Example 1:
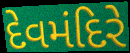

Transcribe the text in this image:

દેવમંદિરે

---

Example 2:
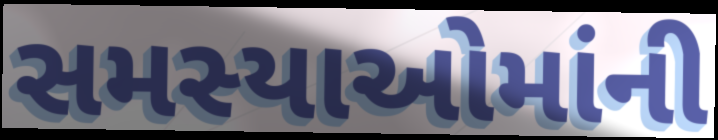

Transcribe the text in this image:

સમસ્યાઓમાંની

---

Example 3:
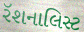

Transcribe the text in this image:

રૅશનાલિસ્ટ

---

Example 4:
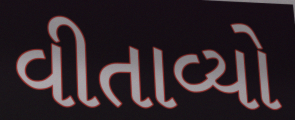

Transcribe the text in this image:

વીતાવ્યો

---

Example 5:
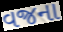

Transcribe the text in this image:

વજ્રના